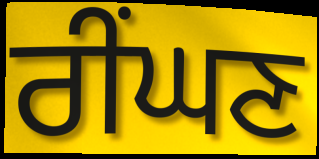
ਰੀਂਘਣ